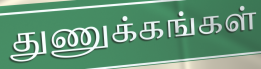
துணுக்கங்கள்